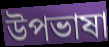
উপভাষা